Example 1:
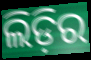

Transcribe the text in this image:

ଲିଡ଼ିର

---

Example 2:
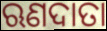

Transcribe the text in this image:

ଋଣଦାତା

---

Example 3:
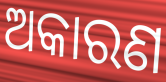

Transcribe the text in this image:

ଅକାରଣ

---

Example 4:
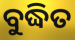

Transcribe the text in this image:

ବୁଦ୍ଧିତ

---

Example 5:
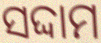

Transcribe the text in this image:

ସଦ୍ଦାମ